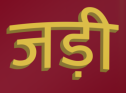
जड़ी